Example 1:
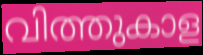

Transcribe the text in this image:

വിത്തുകാള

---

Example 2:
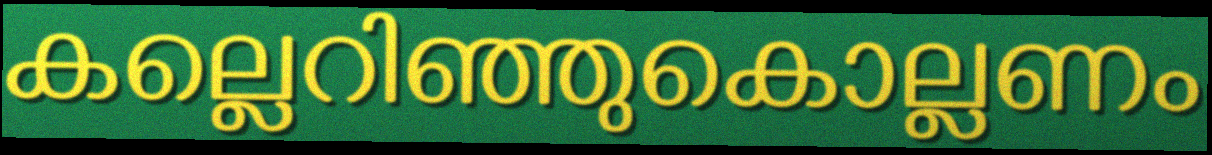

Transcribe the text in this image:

കല്ലെറിഞ്ഞുകൊല്ലണം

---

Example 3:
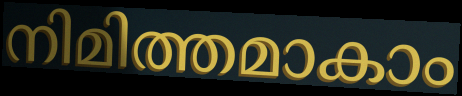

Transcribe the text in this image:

നിമിത്തമാകാം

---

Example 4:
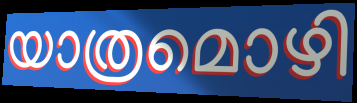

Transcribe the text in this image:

യാത്രമൊഴി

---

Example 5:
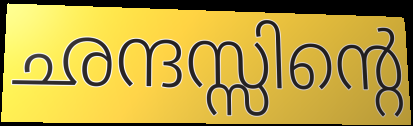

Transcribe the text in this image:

ഛന്ദസ്സിന്റെ